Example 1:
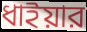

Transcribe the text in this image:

ধাইয়ার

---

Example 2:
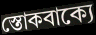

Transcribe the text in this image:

স্তোকবাক্যে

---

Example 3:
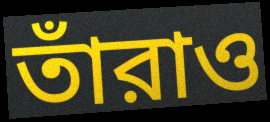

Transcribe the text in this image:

তাঁরাও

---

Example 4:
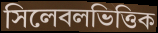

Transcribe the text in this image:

সিলেবলভিত্তিক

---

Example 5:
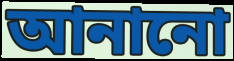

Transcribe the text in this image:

আনানো